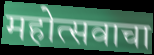
महोत्सवाचा